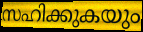
സഹിക്കുകയും